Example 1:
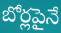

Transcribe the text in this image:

బోర్లపైనే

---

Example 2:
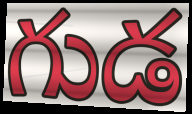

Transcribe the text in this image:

గుడ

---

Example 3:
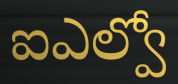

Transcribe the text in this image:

ఐఎల్వో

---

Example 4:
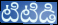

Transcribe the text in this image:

టిటిడి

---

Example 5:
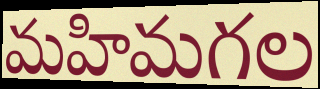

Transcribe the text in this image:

మహిమగల